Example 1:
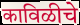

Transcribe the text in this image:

काविळीचे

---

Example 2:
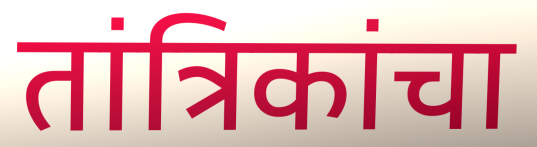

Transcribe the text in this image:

तांत्रिकांचा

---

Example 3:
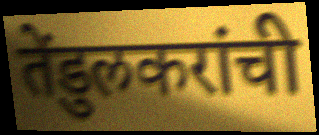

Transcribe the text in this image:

तेंडुलकरांची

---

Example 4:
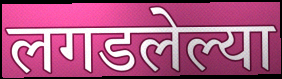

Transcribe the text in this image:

लगडलेल्या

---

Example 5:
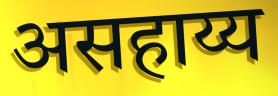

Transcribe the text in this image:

असहाय्य